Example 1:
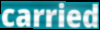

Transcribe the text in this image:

carried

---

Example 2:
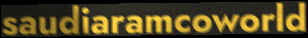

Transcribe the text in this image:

saudiaramcoworld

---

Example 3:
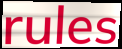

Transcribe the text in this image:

rules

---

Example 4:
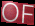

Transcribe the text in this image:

OF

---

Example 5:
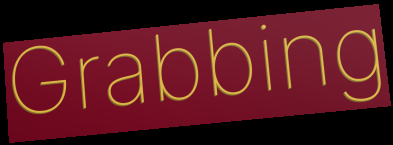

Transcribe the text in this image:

Grabbing